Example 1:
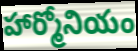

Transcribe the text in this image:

హార్మోనియం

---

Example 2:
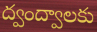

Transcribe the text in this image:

ద్వంద్వాలకు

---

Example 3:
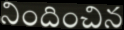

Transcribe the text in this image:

నిందించిన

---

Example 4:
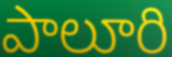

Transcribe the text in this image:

పాలూరి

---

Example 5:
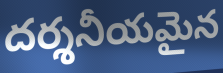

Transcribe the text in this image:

దర్శనీయమైన